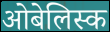
ओबेलिस्क